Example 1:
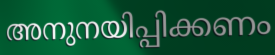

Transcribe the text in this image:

അനുനയിപ്പിക്കണം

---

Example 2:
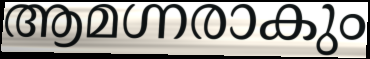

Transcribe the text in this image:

ആമഗ്നരാകും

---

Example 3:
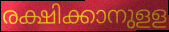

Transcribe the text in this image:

രക്ഷിക്കാനുളള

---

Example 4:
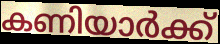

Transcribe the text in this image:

കണിയാർക്ക്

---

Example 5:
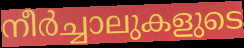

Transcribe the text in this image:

നീർച്ചാലുകളുടെ